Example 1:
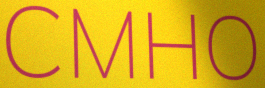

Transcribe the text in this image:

CMHO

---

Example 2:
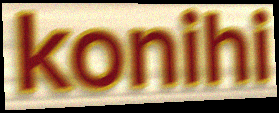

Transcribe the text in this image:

konihi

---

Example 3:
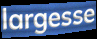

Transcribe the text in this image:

largesse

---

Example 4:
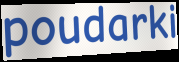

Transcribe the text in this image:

poudarki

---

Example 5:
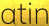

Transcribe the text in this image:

atin